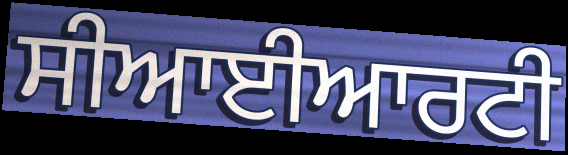
ਸੀਆਈਆਰਟੀ